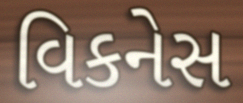
વિકનેસ